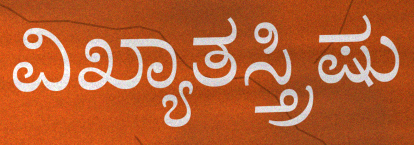
ವಿಖ್ಯಾತಸ್ತ್ರಿಷು